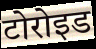
टोरोइड